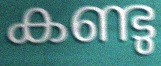
കണ്ടു